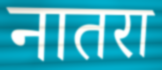
नातरा